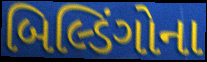
બિલ્ડિંગોના